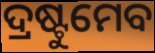
ଦ୍ରଷ୍ଟୁମେବ